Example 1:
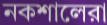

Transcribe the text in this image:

নকশালেরা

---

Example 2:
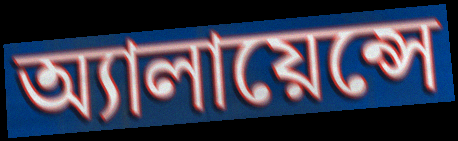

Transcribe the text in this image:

অ্যালায়েন্সে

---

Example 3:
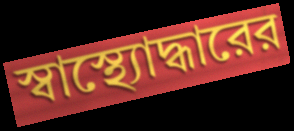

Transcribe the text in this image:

স্বাস্থ্যোদ্ধারের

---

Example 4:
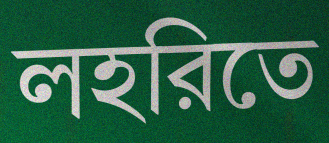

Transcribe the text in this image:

লহরিতে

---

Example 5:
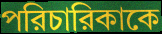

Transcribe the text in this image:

পরিচারিকাকে